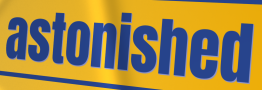
astonished